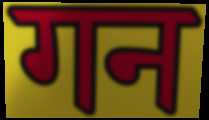
गन